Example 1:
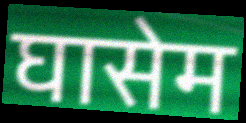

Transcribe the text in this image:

घासेम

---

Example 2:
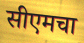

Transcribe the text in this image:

सीएमचा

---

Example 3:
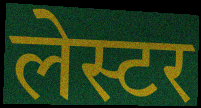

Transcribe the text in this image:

लेस्टर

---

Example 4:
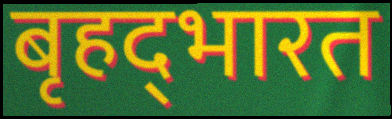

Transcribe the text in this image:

बृहद्भारत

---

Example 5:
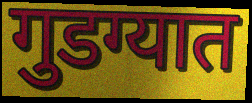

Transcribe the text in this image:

गुडग्यात